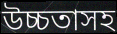
উচ্চতাসহ